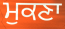
ਮੁਕਣਾ